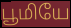
பூமியே